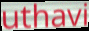
uthavi